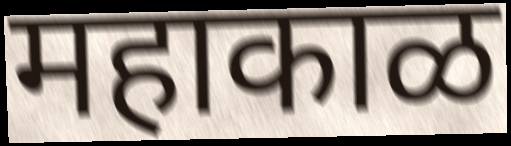
महाकाळ